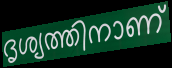
ദൃശ്യത്തിനാണ്